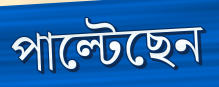
পাল্টেছেন